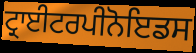
ਟ੍ਰਾਈਟਰਪੀਨੋਇਡਸ